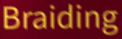
Braiding